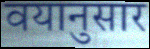
वयानुसार